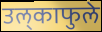
उल्काफुले